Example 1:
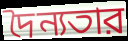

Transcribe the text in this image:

দৈন্যতার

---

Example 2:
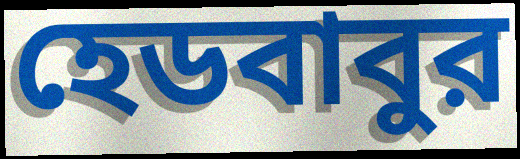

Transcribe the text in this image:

হেডবাবুর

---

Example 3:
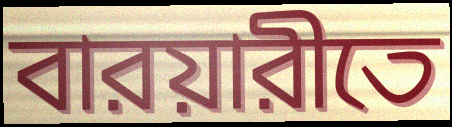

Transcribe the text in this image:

বারয়ারীতে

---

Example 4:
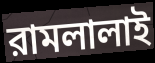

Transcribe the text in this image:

রামলালাই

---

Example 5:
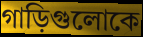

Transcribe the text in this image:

গাড়িগুলোকে